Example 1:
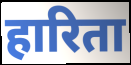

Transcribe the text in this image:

हारिता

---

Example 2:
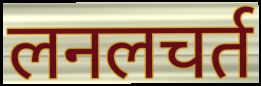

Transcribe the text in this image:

लनलचर्त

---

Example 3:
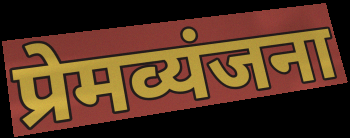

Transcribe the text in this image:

प्रेमव्यंजना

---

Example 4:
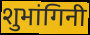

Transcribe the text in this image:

शुभांगिनी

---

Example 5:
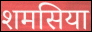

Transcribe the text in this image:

शमसिया